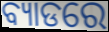
ବ୍ୟାଡରେ